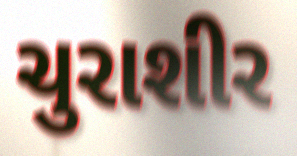
ચુરાશીર